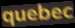
quebec